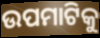
ଉପମାଟିକୁ